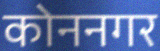
कोननगर